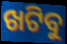
ଖଟିବୁ